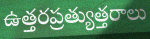
ఉత్తరప్రత్యుత్తరాలు